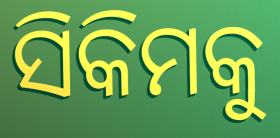
ସିକିମକୁ